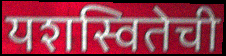
यशस्वितेची